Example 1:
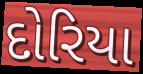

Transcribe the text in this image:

દોરિયા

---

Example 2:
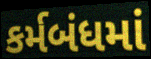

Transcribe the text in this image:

કર્મબંધમાં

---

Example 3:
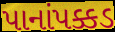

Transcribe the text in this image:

પાનાંપક્કડ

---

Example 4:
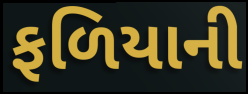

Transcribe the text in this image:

ફળિયાની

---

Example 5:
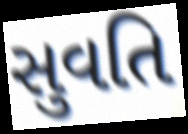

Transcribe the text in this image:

સુવતિ